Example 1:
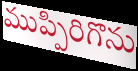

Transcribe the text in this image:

ముప్పిరిగొను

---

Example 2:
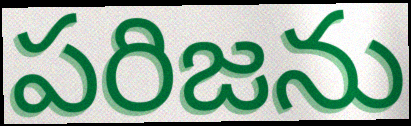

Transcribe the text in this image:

పరిజను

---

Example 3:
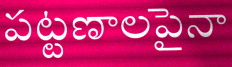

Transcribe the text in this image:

పట్టణాలపైనా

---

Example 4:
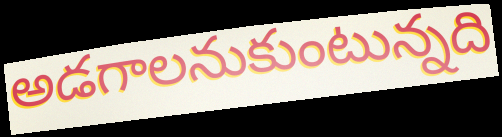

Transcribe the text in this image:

అడగాలనుకుంటున్నది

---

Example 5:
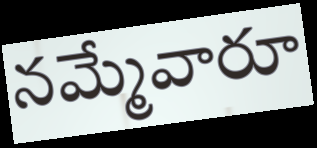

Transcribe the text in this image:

నమ్మేవారూ